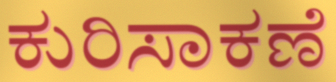
ಕುರಿಸಾಕಣೆ